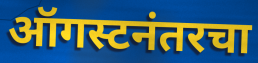
ऑगस्टनंतरचा